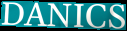
DANICS